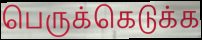
பெருக்கெடுக்க